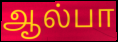
ஆல்பா